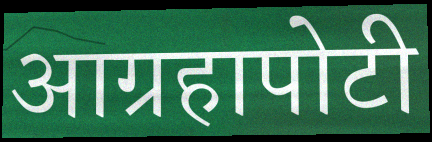
आग्रहापोटी